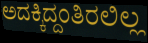
ಅದಕ್ಕಿದ್ದಂತಿರಲಿಲ್ಲ